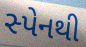
સ્પેનથી